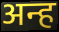
अन्ह